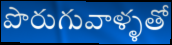
పొరుగువాళ్ళతో